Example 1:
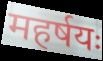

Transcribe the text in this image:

महर्षयः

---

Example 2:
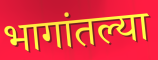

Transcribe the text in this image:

भागांतल्या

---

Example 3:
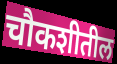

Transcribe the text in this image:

चौकशीतील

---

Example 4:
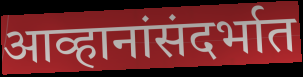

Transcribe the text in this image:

आव्हानांसंदर्भात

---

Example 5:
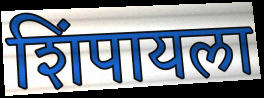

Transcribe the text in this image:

शिंपायला